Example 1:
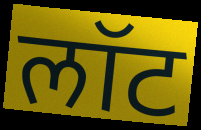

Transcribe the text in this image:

लॉट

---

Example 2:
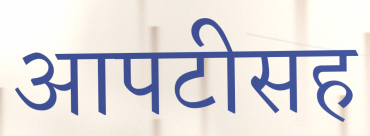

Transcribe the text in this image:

आपटीसह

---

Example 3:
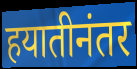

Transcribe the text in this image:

हयातीनंतर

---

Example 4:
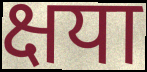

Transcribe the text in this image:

क्षया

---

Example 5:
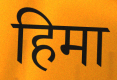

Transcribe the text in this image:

हिमा